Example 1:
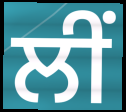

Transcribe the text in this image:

ਲੀਂ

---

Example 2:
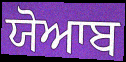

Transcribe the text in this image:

ਯੋਆਬ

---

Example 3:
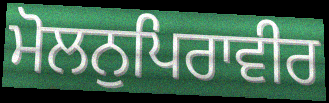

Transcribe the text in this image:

ਮੋਲਨੁਪਿਰਾਵੀਰ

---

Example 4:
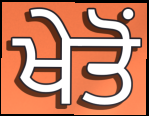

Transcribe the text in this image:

ਖੇਤੋਂ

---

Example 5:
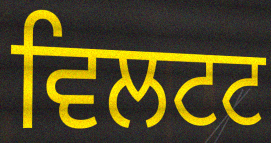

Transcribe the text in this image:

ਵਿਲਟਟ